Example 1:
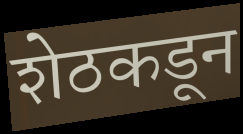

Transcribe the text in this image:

शेठकडून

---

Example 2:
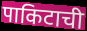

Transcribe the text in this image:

पाकिटाची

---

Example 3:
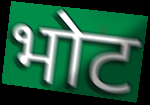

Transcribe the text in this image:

भोट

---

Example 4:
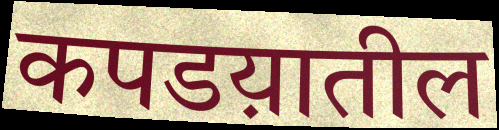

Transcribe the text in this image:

कपडय़ातील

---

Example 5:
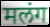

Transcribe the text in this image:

मलंग